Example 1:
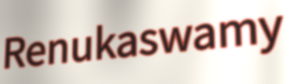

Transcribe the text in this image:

Renukaswamy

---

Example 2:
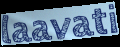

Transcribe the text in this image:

laavati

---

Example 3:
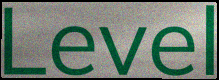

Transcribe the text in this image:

Level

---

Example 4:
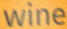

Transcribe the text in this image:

wine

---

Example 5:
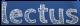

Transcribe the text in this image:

lectus